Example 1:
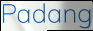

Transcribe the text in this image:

Padang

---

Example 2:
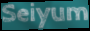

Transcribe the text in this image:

Seiyum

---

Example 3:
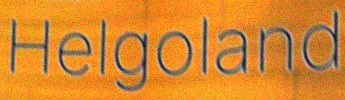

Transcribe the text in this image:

Helgoland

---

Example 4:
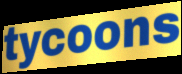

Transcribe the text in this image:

tycoons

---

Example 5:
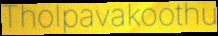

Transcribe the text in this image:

Tholpavakoothu